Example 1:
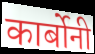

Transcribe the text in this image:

कार्बोनी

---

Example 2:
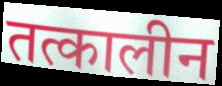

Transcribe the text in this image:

तत्कालीन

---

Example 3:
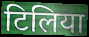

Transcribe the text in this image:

टिलिया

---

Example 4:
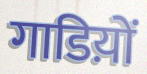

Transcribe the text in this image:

गाडिय़ों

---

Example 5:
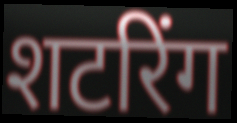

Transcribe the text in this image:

शटरिंग